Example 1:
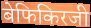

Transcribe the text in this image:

बेफिकिरजी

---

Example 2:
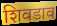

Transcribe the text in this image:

शिवडाव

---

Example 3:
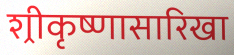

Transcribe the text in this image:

श्रीकृष्णासारिखा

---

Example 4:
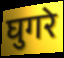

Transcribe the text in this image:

घुगरे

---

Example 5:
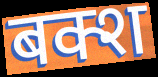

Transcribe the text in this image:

बक्श